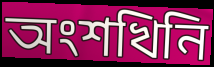
অংশখিনি